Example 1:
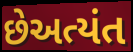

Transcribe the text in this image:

છેઅત્યંત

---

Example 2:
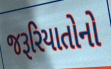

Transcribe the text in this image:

જરૂરિયાતોનો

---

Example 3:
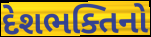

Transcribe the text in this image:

દેશભક્તિનો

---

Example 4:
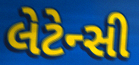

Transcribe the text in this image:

લેટેન્સી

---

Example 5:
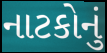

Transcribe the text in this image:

નાટકોનું